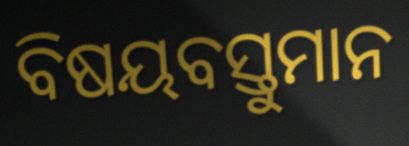
ବିଷୟବସ୍ତୁମାନ